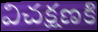
విచక్షణకి